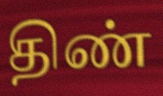
திண்